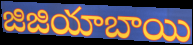
జిజియాబాయి